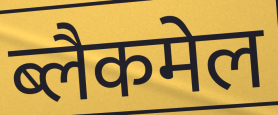
ब्लैकमेल